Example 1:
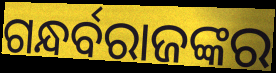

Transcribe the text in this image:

ଗନ୍ଧର୍ବରାଜଙ୍କର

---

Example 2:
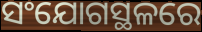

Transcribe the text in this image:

ସଂଯୋଗସ୍ଥଳରେ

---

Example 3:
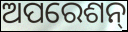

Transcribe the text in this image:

ଅପରେଶନ୍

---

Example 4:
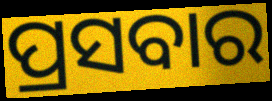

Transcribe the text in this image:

ପ୍ରସବାର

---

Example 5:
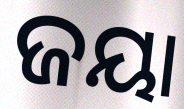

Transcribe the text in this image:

ଜୟା